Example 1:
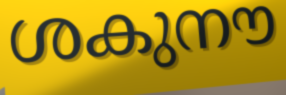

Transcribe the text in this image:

ശകുനൗ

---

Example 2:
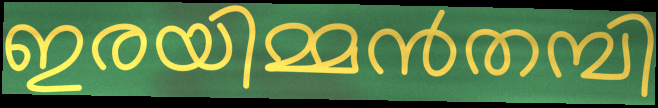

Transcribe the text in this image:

ഇരയിമ്മൻതമ്പി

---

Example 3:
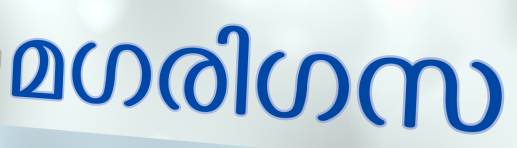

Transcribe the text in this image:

മഗരിഗസ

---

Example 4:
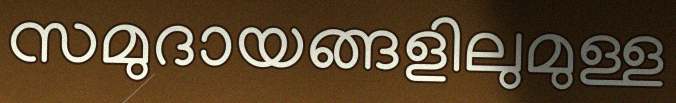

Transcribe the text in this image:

സമുദായങ്ങളിലുമുള്ള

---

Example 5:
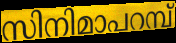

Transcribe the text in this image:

സിനിമാപറമ്പ്